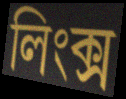
লিংক্স